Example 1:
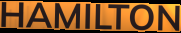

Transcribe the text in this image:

HAMILTON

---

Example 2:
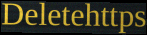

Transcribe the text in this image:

Deletehttps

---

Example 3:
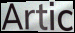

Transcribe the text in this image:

Artic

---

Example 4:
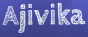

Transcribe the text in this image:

Ajivika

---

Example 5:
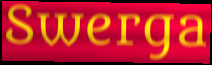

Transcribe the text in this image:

Swerga